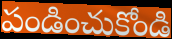
పండించుకోండి